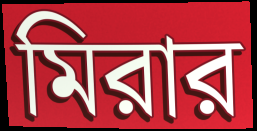
মিরার